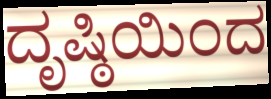
ದೃಷ್ಠಿಯಿಂದ